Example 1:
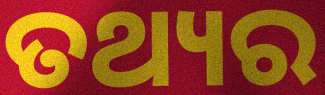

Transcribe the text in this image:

ତଥ୍ୟର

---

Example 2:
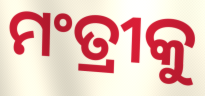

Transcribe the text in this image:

ମଂତ୍ରୀକୁ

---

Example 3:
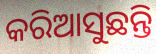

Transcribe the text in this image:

କରିଆସୁଛନ୍ତି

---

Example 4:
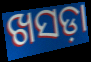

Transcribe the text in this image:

ଖସଡ଼ା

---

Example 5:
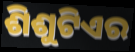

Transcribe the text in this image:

ଶିଶୁଟିଏର